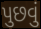
પુછવું